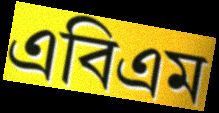
এবিএম